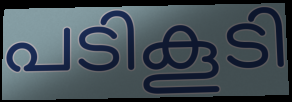
പടികൂടി